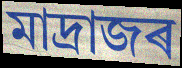
মাদ্ৰাজৰ